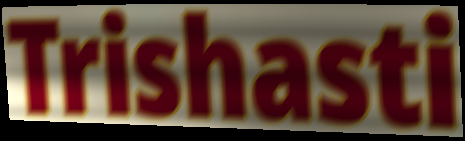
Trishasti